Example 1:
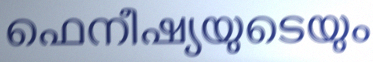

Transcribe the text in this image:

ഫെനീഷ്യയുടെയും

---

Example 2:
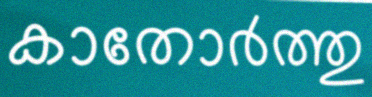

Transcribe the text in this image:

കാതോർത്തു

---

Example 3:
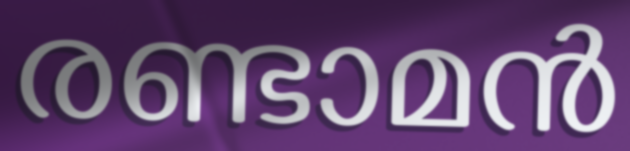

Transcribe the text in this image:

രണ്ടാമൻ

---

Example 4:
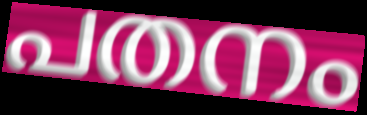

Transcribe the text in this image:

പതനം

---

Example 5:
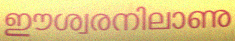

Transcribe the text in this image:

ഈശ്വരനിലാണു